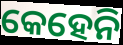
କେହେନି